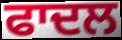
ਫਾਦਲ